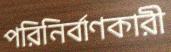
পরিনির্বাণকারী